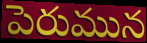
పెరుమున